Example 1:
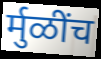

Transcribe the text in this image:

र्मुळींच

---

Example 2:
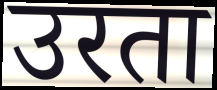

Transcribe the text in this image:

उरता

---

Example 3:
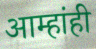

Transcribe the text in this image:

आम्हांही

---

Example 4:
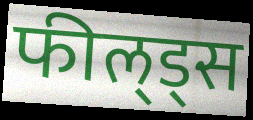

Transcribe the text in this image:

फील्ड्स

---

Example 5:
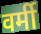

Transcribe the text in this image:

वर्मी